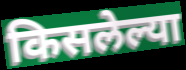
किसलेल्या